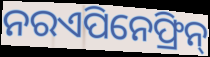
ନରଏପିନେଫ୍ରିନ୍